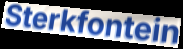
Sterkfontein